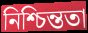
নিশ্চিন্ততা